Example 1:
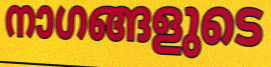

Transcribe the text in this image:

നാഗങ്ങളുടെ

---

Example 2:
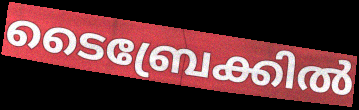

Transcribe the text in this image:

ടൈബ്രേക്കിൽ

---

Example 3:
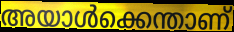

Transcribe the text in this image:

അയാൾക്കെന്താണ്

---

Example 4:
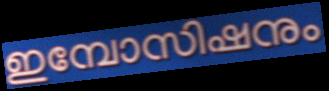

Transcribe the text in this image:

ഇമ്പോസിഷനും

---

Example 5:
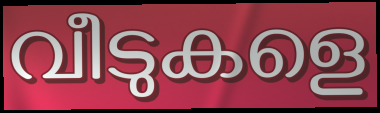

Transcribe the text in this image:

വീടുകളെ